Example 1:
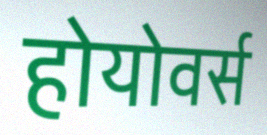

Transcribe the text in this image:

होयोवर्स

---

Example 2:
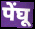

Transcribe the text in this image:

पेंघू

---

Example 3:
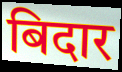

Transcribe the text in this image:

बिदार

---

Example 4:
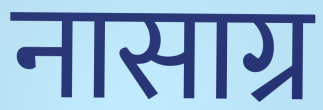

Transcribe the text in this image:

नासाग्र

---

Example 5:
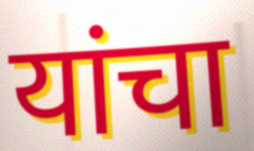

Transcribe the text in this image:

यांचा